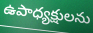
ఉపాధ్యక్షులను